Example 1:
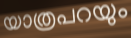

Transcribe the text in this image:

യാത്രപറയും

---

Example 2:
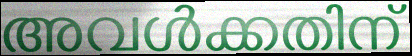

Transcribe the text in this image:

അവൾക്കതിന്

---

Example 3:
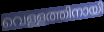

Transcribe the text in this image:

വെള്ളത്തിനായി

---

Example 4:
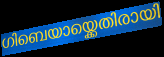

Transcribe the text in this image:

ഗിബെയായ്ക്കെതിരായി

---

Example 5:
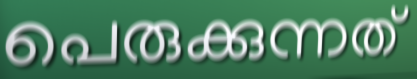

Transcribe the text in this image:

പെരുക്കുന്നത്